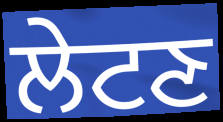
ਲੇਟਣ